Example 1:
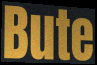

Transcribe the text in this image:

Bute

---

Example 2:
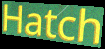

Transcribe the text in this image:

Hatch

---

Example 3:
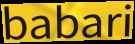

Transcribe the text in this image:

babari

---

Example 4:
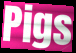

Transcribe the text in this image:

Pigs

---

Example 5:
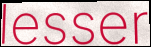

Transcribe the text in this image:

lesser